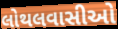
લોથલવાસીઓ